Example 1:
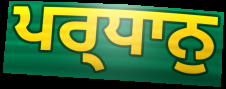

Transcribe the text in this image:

ਪਰ੍ਧਾਨੁ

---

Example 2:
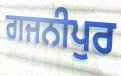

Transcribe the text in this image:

ਗਜਨੀਪੁਰ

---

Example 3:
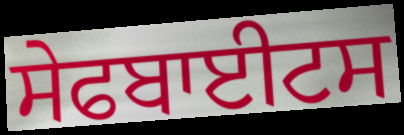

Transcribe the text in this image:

ਸੇਫਬਾਈਟਸ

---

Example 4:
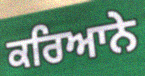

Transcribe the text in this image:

ਕਰਿਆਨੇ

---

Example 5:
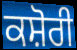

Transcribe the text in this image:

ਕਸ਼ੋਰੀ